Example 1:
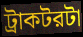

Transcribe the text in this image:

ট্রাকটরটা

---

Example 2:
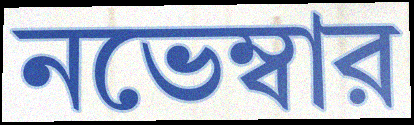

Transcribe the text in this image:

নভেম্বার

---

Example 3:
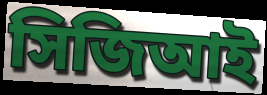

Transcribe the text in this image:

সিজিআই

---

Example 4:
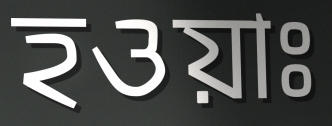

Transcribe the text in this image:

হওয়াঃ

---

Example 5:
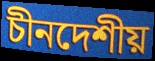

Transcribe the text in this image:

চীনদেশীয়